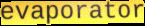
evaporator